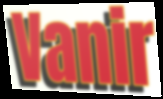
Vanir